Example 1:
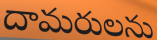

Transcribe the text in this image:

దామరులను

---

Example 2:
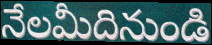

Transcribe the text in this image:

నేలమీదినుండి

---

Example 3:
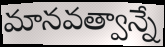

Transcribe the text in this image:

మానవత్వాన్నే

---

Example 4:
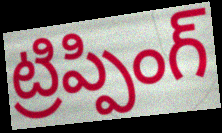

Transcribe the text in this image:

ట్రిప్పింగ్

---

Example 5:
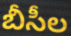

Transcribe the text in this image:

బీసీల